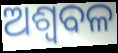
ଅଶ୍ୱବଳ